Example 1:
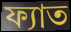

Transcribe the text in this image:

ফ্যাত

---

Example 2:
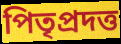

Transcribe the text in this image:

পিতৃপ্রদত্ত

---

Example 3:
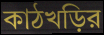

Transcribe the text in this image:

কাঠখড়ির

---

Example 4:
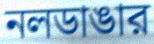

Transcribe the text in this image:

নলডাঙার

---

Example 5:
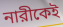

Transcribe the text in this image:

নারীকেই